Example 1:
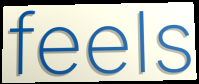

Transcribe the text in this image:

feels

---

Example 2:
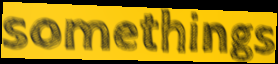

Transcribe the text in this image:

somethings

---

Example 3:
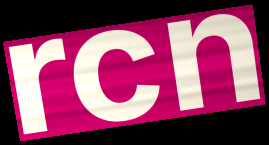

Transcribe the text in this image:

rcn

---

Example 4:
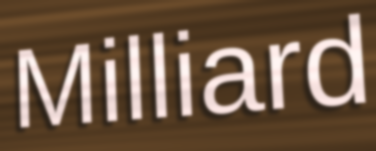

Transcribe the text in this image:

Milliard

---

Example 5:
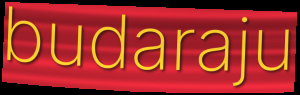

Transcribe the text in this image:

budaraju